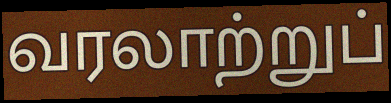
வரலாற்றுப்